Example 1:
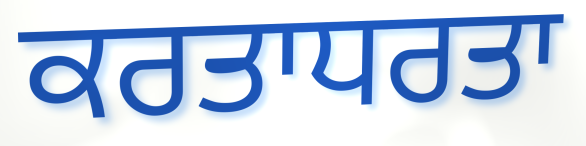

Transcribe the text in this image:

ਕਰਤਾਧਰਤਾ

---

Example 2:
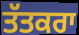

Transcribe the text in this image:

ਤੱਤਕਰਾ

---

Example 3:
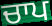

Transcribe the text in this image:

ਚਾਪ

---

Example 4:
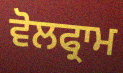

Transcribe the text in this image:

ਵੋਲਫ੍ਰਾਮ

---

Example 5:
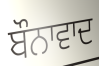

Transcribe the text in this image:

ਬੌਨਾਵਾਦ